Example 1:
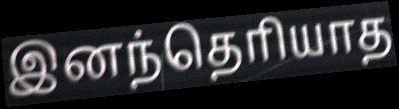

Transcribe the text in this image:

இனந்தெரியாத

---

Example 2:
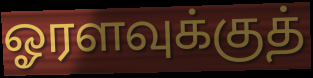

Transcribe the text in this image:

ஓரளவுக்குத்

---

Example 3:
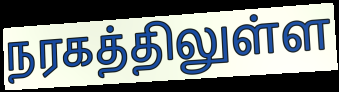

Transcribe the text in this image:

நரகத்திலுள்ள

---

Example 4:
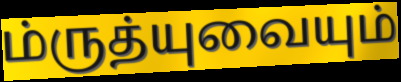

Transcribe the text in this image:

ம்ருத்யுவையும்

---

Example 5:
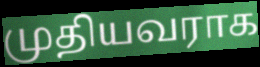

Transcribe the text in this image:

முதியவராக